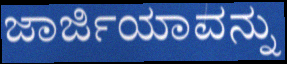
ಜಾರ್ಜಿಯಾವನ್ನು